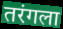
तरंगला